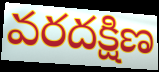
వరదక్షిణ